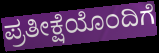
ಪ್ರತೀಕ್ಷೆಯೊಂದಿಗೆ